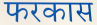
फरकास